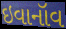
ઇવાનૉવ